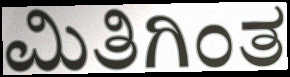
ಮಿತಿಗಿಂತ